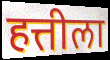
हत्तीला